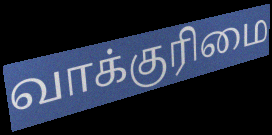
வாக்குரிமை